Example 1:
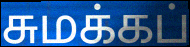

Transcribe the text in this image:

சுமக்கப்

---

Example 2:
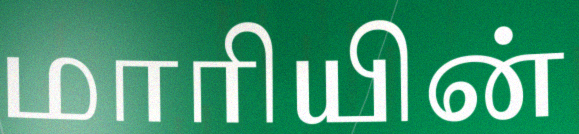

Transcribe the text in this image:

மாரியின்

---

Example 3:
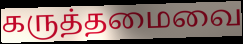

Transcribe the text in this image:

கருத்தமைவை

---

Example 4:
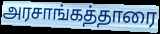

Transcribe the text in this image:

அரசாங்கத்தாரை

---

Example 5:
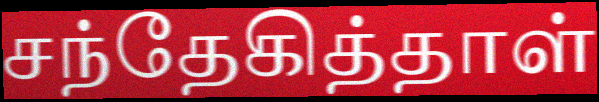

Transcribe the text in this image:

சந்தேகித்தாள்